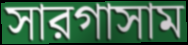
সারগাসাম